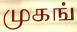
முகங்